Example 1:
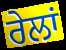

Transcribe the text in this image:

ਰੇਲਾਂ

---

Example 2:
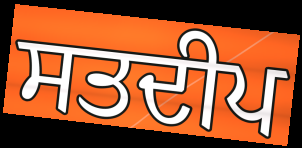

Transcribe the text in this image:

ਸਤਦੀਪ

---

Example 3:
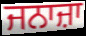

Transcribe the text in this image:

ਜਨਾਜ਼ਾ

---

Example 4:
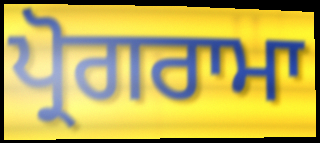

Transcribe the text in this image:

ਪ੍ਰੋਗਰਾਮਾ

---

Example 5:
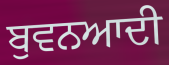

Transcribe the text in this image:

ਬੁਵਨਆਦੀ